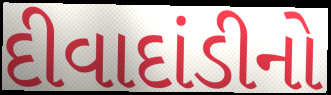
દીવાદાંડીનો